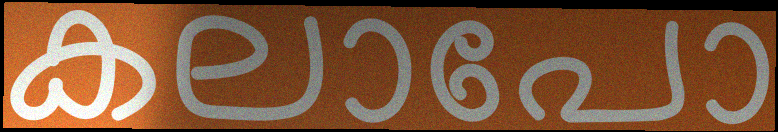
കലാപോ